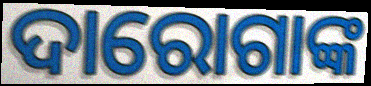
ଦାରୋଗାଙ୍କ